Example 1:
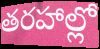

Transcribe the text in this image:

తరహాల్లో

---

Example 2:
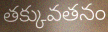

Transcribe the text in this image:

తక్కువతనం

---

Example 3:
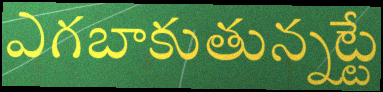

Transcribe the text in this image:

ఎగబాకుతున్నట్టే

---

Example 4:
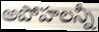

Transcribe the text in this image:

అపోహలన్నీ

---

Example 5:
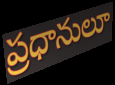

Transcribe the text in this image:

ప్రధానులూ